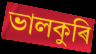
ভালকুৰি